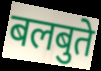
बलबुते